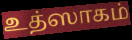
உத்ஸாகம்